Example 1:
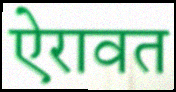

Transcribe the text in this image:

ऐरावत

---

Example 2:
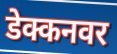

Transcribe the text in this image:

डेक्कनवर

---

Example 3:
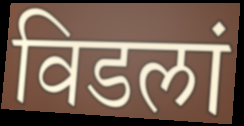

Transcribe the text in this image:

विडलां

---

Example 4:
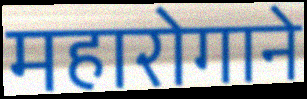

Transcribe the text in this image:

महारोगाने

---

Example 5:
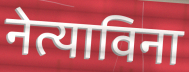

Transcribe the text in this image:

नेत्याविना